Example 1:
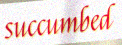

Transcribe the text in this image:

succumbed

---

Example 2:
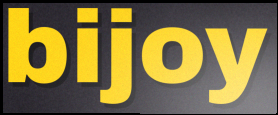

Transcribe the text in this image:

bijoy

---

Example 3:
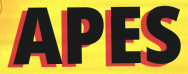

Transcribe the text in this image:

APES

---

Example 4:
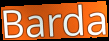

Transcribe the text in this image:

Barda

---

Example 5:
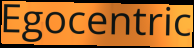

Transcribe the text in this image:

Egocentric